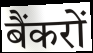
बैंकरों